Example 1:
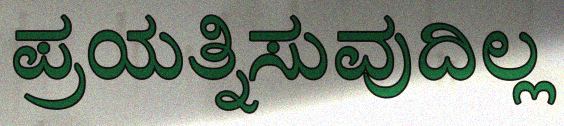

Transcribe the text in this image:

ಪ್ರಯತ್ನಿಸುವುದಿಲ್ಲ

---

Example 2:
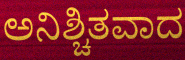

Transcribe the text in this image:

ಅನಿಶ್ಚಿತವಾದ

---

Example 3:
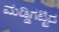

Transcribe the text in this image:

ಮಡ್ಡಿಗಟ್ಟಿದ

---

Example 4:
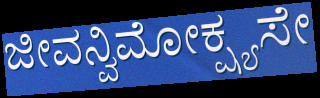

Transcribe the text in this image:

ಜೀವನ್ವಿಮೋಕ್ಷ್ಯಸೇ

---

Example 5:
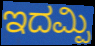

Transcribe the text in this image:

ಇದಮ್ಪಿ